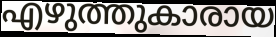
എഴുത്തുകാരായ